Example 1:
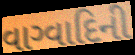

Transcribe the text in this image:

વાગ્વાદિની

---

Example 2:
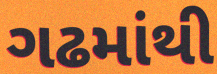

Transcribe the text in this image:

ગઢમાંથી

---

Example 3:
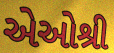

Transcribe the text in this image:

એઓશ્રી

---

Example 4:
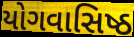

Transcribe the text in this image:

યોગવાસિષ્ઠ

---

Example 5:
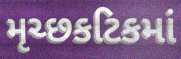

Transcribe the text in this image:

મૃચ્છકટિકમાં